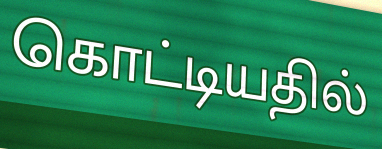
கொட்டியதில்